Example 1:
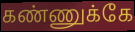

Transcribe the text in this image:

கண்ணுக்கே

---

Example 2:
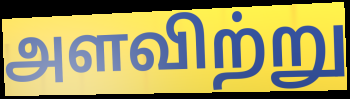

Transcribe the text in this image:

அளவிற்று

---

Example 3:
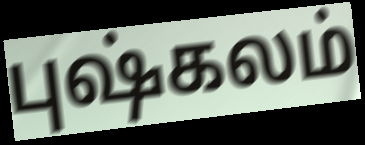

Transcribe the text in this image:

புஷ்கலம்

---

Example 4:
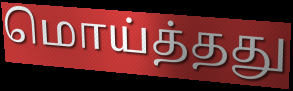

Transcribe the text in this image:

மொய்த்தது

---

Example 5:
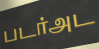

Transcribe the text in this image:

படர்அட